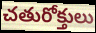
చతురోక్తులు